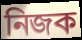
নিজক